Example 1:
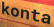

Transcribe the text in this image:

konta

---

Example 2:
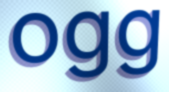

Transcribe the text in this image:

ogg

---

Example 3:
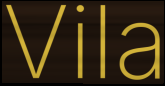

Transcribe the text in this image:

Vila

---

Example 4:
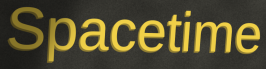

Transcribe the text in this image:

Spacetime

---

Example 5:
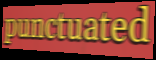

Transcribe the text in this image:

punctuated